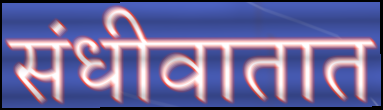
संधीवातात